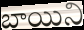
బాయిని